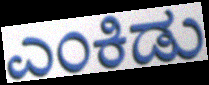
ಎಂಕಿಡು